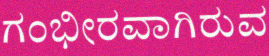
ಗಂಭೀರವಾಗಿರುವ